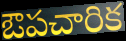
ఔపచారిక